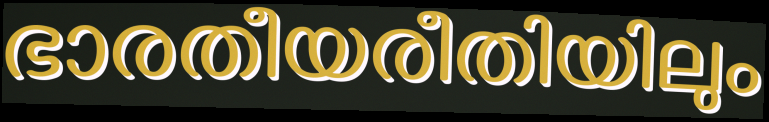
ഭാരതീയരീതിയിലും